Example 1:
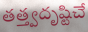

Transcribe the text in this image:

తత్త్వదృష్టిచే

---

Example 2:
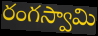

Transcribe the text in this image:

రంగస్వామి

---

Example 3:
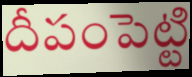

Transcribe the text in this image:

దీపంపెట్టి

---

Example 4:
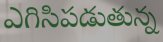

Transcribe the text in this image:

ఎగిసిపడుతున్న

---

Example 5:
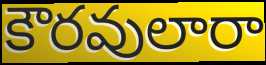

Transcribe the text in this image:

కౌరవులారా